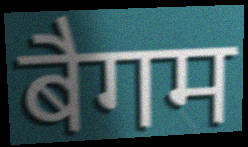
बैगम